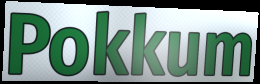
Pokkum